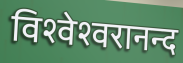
विश्वेश्वरानन्द